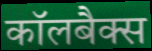
कॉलबैक्स